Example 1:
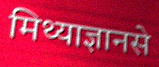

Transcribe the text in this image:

मिथ्याज्ञानसे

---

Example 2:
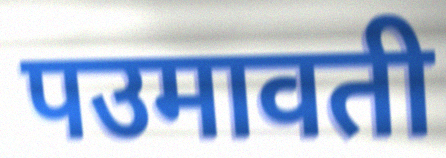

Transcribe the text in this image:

पउमावती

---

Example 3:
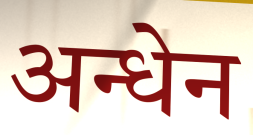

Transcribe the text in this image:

अन्धेन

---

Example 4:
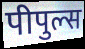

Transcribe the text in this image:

पीपुल्स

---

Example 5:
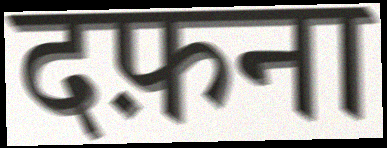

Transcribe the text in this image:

दफ़ना